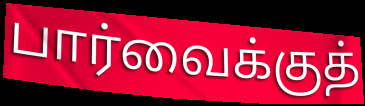
பார்வைக்குத்